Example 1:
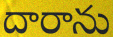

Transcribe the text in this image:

దారాను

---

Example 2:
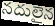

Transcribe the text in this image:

నదులైన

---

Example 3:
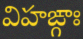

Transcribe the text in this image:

విహఙ్గాః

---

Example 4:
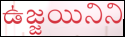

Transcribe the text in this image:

ఉజ్జయినిని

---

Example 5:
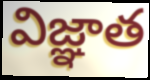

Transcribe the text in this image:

విజ్ఞాత